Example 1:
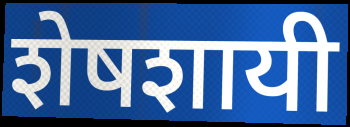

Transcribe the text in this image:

शेषशायी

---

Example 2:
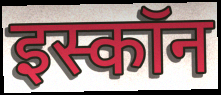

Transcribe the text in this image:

इस्कॉन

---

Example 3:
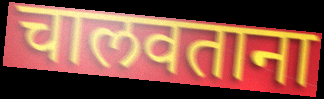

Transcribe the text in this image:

चालवताना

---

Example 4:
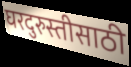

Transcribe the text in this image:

घरदुरुस्तीसाठी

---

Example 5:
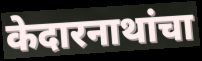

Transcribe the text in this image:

केदारनाथांचा